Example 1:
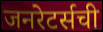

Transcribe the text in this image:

जनरेटर्सची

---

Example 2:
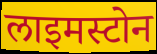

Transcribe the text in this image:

लाइमस्टोन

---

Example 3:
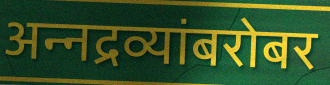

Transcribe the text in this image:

अन्नद्रव्यांबरोबर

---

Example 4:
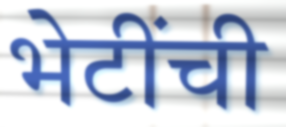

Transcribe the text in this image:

भेटींची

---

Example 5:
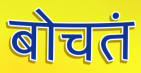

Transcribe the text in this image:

बोचतं